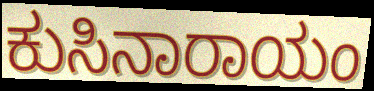
ಕುಸಿನಾರಾಯಂ